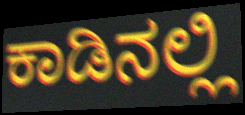
ಕಾಡಿನಲ್ಲಿ